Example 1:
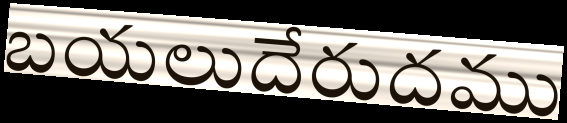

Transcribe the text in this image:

బయలుదేరుదము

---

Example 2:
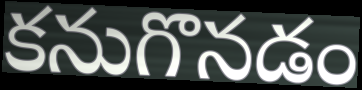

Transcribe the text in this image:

కనుగొనడం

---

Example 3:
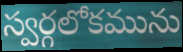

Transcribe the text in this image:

స్వర్గలోకమును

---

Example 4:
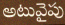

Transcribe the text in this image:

అటువైపు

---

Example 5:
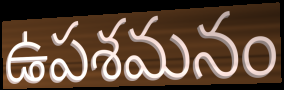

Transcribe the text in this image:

ఉపశమనం